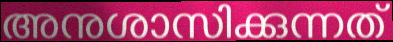
അനുശാസിക്കുന്നത്